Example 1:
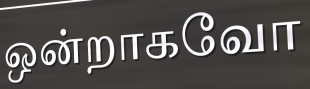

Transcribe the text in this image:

ஒன்றாகவோ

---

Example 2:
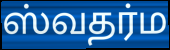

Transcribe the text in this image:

ஸ்வதர்ம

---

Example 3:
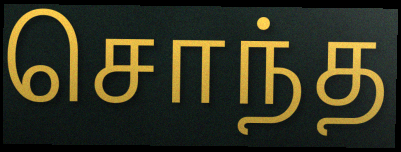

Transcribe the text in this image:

சொந்த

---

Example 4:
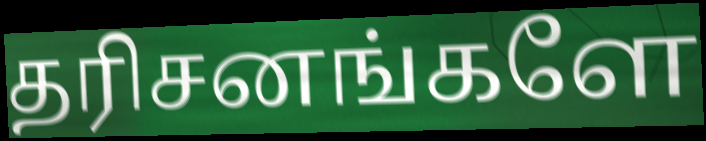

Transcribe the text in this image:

தரிசனங்களே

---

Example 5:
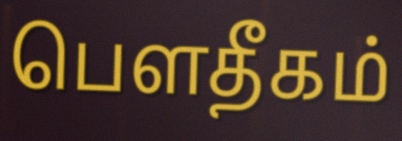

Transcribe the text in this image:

பௌதீகம்